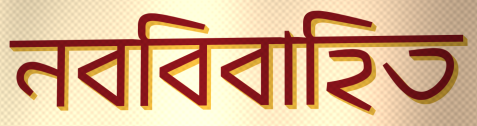
নববিবাহিত